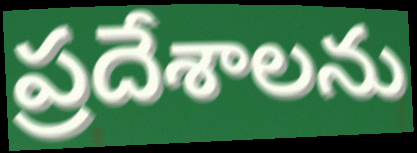
ప్రదేశాలను